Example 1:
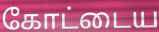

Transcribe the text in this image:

கோட்டைய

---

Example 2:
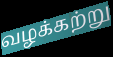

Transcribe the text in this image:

வழக்கற்று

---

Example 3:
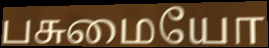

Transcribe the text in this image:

பசுமையோ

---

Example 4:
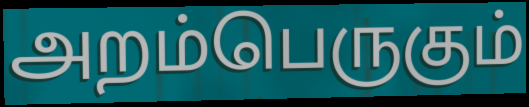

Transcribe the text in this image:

அறம்பெருகும்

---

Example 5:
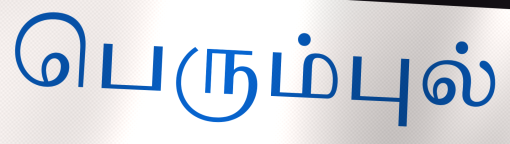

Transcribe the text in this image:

பெரும்புல்